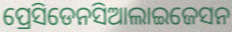
ପ୍ରେସିଡେନସିଆଲାଇଜେସନ